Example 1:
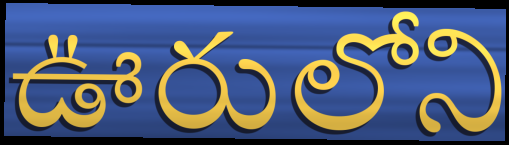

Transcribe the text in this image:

ఊరులోని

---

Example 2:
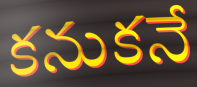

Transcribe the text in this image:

కనుకనే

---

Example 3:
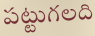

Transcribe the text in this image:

పట్టుగలది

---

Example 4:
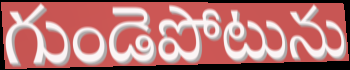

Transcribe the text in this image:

గుండెపోటును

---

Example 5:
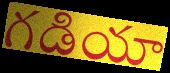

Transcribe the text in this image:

గడియా